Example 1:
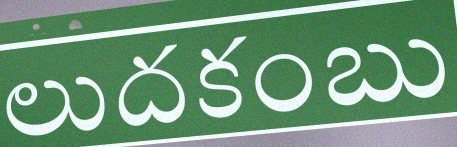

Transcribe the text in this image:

లుదకంబు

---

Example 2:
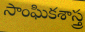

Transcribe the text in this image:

సాంఘికశాస్త్ర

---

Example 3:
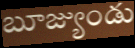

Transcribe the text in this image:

బూజ్యుండు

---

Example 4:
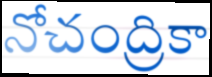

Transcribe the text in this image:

నోచంద్రికా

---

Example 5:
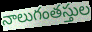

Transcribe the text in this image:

నాలుగంతస్తుల